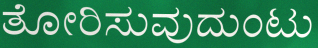
ತೋರಿಸುವುದುಂಟು